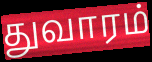
துவாரம்